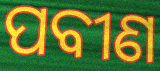
ପବୀଣ